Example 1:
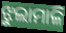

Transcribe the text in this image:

ଝୁଲାମାଳି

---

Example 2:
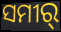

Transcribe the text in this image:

ସମୀର୍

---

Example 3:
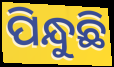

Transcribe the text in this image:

ପିନ୍ଧୁଛି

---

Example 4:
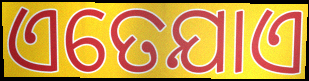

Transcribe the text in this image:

ଏତେଯାଏ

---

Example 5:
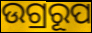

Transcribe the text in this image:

ଉଗ୍ରରୂପ